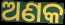
ଅଣକ